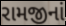
રામજીનાં